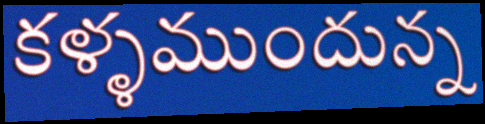
కళ్ళముందున్న